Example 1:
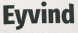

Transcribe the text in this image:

Eyvind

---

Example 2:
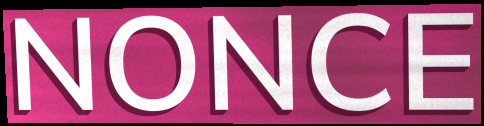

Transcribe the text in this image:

NONCE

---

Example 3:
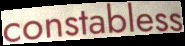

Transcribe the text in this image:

constabless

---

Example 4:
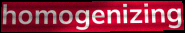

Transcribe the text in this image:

homogenizing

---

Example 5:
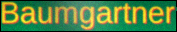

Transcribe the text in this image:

Baumgartner